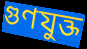
গুণযুক্ত